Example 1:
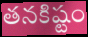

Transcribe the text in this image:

తనకిష్టం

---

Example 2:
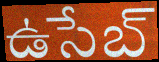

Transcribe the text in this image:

ఉసేబ్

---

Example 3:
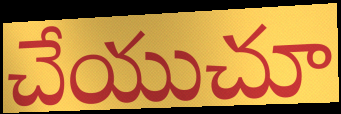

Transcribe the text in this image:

చేయుచూ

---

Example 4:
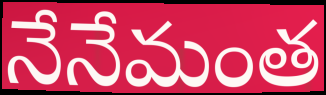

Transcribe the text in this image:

నేనేమంత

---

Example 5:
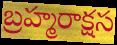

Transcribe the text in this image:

బ్రహ్మరాక్షస